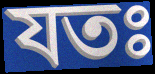
যতঃ